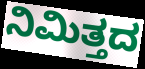
ನಿಮಿತ್ತದ